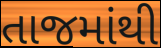
તાજમાંથી